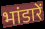
भांडारें